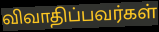
விவாதிப்பவர்கள்